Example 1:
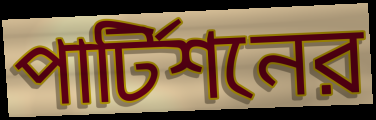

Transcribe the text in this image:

পার্টিশনের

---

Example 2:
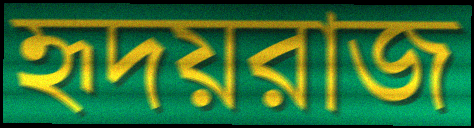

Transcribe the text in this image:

হৃদয়রাজ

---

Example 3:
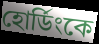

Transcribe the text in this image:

হোর্ডিংকে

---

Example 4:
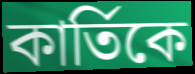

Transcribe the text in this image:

কার্তিকে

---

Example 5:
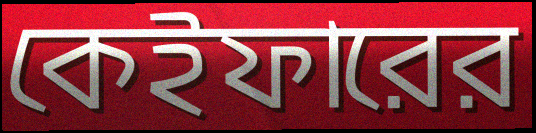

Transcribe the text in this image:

কেইফারের